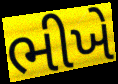
ભીખે